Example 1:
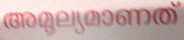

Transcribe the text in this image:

അമൂല്യമാണത്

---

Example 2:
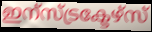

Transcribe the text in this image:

ഇന്സ്ട്രക്ടേഴ്സ്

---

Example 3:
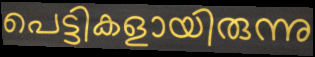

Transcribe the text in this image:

പെട്ടികളായിരുന്നു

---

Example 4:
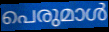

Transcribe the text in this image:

പെരുമാൾ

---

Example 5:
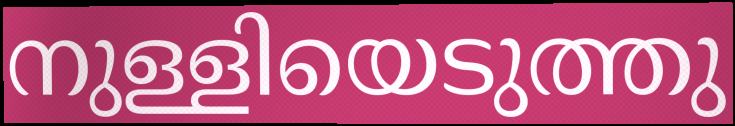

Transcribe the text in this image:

നുള്ളിയെടുത്തു